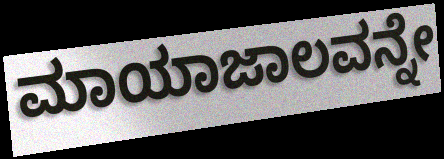
ಮಾಯಾಜಾಲವನ್ನೇ